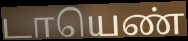
டாயெண்